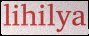
lihilya